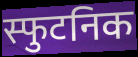
स्फुटनिक